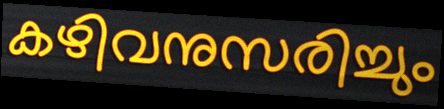
കഴിവനുസരിച്ചും